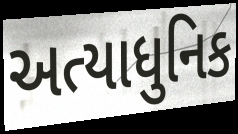
અત્યાધુનિક